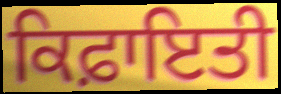
ਕਿਫ਼ਾਇਤੀ